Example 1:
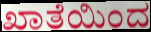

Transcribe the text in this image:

ಖಾತೆಯಿಂದ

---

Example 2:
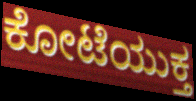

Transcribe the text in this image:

ಕೋಟೆಯುಕ್ತ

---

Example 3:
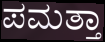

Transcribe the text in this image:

ಪಮತ್ತಾ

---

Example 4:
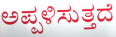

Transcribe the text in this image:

ಅಪ್ಪಳಿಸುತ್ತದೆ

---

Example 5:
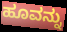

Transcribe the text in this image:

ಹೂವನ್ನು